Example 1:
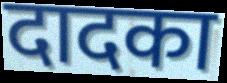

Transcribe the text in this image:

दादका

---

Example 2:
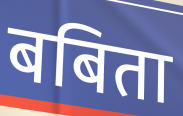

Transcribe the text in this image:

बबिता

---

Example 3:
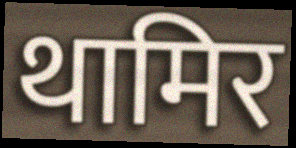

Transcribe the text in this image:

थामिर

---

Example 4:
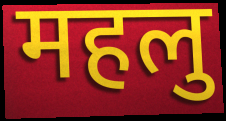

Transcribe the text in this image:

महलु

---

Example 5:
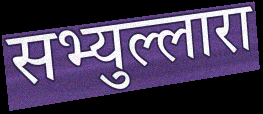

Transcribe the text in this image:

सभ्युल्लारा